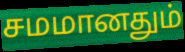
சமமானதும்